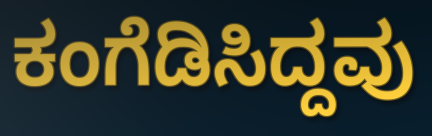
ಕಂಗೆಡಿಸಿದ್ದವು